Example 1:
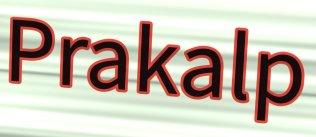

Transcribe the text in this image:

Prakalp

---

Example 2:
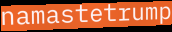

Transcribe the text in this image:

namastetrump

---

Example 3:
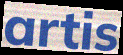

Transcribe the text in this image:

artis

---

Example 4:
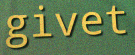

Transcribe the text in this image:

givet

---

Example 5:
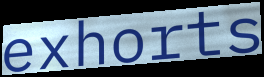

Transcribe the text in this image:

exhorts